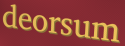
deorsum